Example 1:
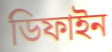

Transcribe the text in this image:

ডিফাইন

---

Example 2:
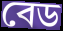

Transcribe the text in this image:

বেড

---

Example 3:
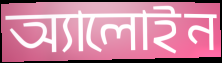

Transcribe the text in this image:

অ্যালোইন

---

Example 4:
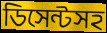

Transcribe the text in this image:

ডিসেন্টসহ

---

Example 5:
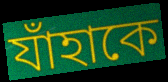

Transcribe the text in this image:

যাঁহাকে